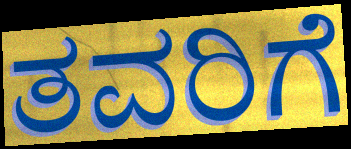
ತವರಿಗೆ